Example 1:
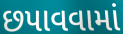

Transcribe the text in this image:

છપાવવામાં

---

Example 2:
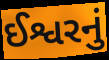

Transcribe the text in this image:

ઈશ્વરનું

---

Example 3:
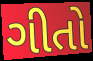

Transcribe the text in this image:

ગીતો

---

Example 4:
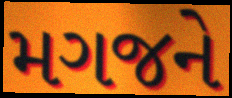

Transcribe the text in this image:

મગજને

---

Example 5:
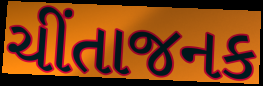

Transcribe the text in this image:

ચીંતાજનક